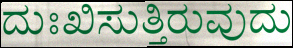
ದುಃಖಿಸುತ್ತಿರುವುದು